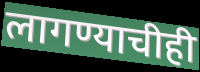
लागण्याचीही